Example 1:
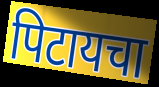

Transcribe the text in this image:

पिटायचा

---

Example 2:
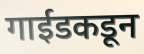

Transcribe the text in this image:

गाईडकडून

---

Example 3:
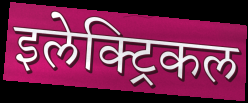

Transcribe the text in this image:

इलेक्ट्रिकल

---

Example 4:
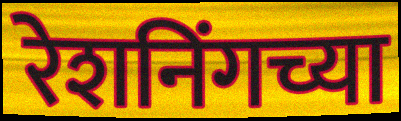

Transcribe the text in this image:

रेशनिंगच्या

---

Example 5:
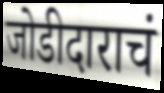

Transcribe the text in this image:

जोडीदाराचं